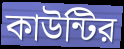
কাউন্টির